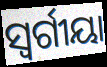
ସ୍ବର୍ଗୀୟା